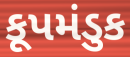
કૂપમંડુક